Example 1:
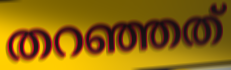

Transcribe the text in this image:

തറഞ്ഞത്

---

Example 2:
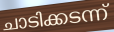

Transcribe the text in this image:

ചാടിക്കടന്ന്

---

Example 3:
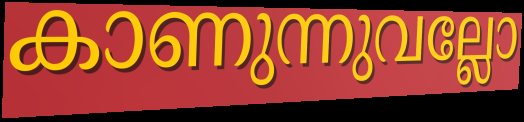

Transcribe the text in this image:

കാണുന്നുവല്ലോ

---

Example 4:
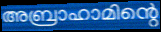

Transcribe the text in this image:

അബ്രാഹാമിന്റെ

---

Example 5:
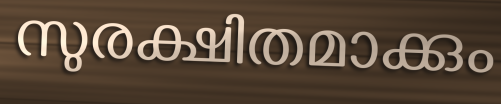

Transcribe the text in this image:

സുരക്ഷിതമാക്കും